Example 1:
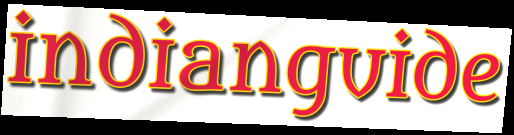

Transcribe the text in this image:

indianguide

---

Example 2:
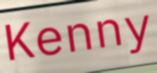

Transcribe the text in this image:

Kenny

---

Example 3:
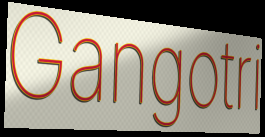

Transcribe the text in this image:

Gangotri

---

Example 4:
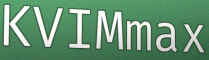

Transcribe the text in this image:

KVIMmax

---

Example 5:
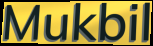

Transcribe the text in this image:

Mukbil